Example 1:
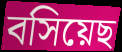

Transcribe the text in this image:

বসিয়েছ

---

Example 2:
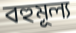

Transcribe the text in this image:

বহুমূল্য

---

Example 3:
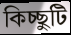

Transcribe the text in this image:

কিচ্ছুটি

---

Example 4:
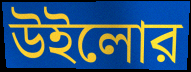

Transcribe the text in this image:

উইলোর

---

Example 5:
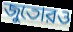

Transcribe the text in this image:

জুতোরও